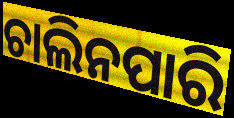
ଚାଲିନପାରି